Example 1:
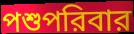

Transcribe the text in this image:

পশুপরিবার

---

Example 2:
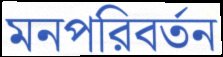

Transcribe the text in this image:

মনপরিবর্তন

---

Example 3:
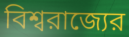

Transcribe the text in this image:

বিশ্বরাজ্যের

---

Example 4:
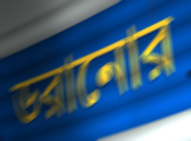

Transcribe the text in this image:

ডরানোর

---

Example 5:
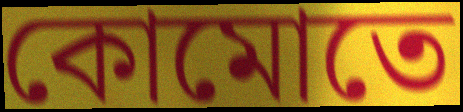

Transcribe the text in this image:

কোমোতে